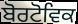
ਬੋਰਟੋਵਿਕ